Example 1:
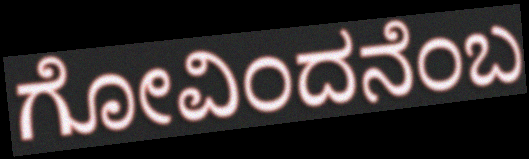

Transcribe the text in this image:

ಗೋವಿಂದನೆಂಬ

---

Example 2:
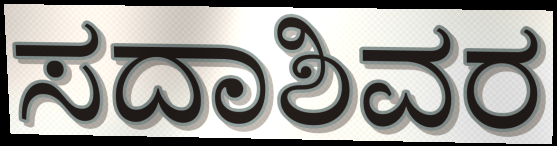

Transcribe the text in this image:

ಸದಾಶಿವರ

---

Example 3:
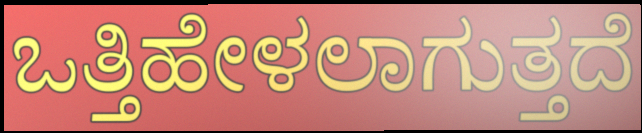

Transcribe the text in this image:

ಒತ್ತಿಹೇಳಲಾಗುತ್ತದೆ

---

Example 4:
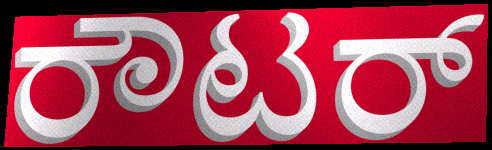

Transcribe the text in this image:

ರೌಟರ್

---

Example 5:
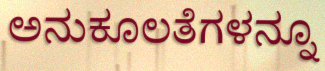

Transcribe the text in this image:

ಅನುಕೂಲತೆಗಳನ್ನೂ